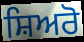
ਸ਼ਿਅਰੋ